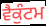
ਵੈਕੁੰਟਮ